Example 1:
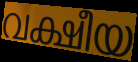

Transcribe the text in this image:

വക്ഷീയ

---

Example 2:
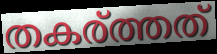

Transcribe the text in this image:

തകര്ത്തത്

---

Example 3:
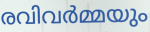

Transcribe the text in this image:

രവിവർമ്മയും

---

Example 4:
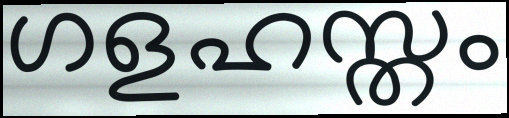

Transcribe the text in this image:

ഗളഹസ്തം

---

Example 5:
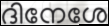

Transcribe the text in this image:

ദിനേശേ